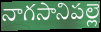
నాగసానిపల్లె